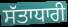
ਸੱਤਾਧਾਰੀ